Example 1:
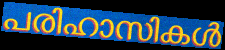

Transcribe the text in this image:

പരിഹാസികൾ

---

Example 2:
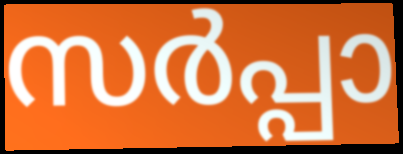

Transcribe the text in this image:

സർപ്പാ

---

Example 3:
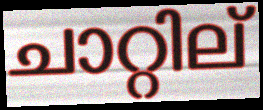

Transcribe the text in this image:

ചാറ്റില്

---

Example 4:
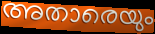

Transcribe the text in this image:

അതാരെയും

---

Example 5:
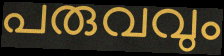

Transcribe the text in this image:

പരുവവും